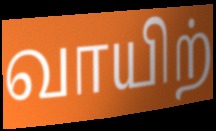
வாயிற்